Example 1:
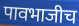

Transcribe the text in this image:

पावभाजीच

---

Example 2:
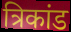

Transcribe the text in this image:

त्रिकांड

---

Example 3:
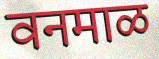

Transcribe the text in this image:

वनमाळ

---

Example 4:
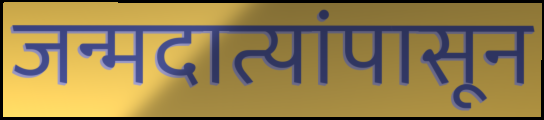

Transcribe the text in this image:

जन्मदात्यांपासून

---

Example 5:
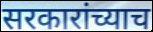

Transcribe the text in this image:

सरकारांच्याच